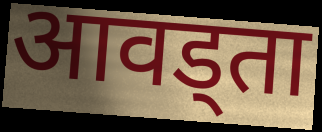
आवड्ता